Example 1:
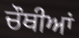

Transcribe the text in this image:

ਚੌਥੀਆਂ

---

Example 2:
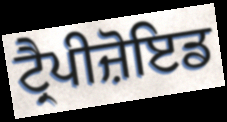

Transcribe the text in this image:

ਟ੍ਰੈਪੀਜ਼ੋਇਡ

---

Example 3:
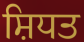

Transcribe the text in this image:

ਸ਼ਿਧਤ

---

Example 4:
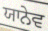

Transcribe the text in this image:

ਯਾਨੇਵ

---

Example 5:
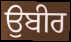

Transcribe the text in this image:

ਉਬੀਰ